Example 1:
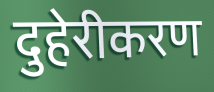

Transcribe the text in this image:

दुहेरीकरण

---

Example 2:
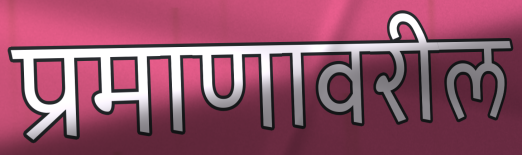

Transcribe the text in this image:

प्रमाणावरील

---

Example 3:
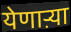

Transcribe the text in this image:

येणाऱ्‍या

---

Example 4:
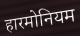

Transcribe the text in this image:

हारमोनियम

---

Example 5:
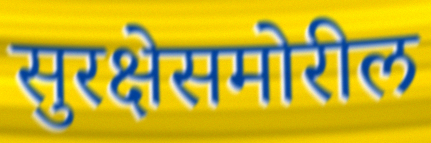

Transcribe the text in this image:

सुरक्षेसमोरील